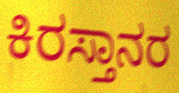
ಕಿರಸ್ತಾನರ